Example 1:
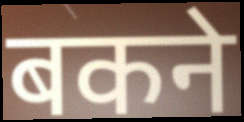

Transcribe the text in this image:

बकने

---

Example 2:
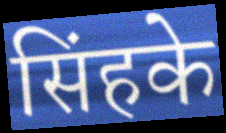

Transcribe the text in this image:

सिंहके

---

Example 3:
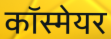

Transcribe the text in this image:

कॉस्मेयर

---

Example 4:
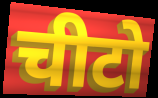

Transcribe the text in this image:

चीटो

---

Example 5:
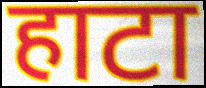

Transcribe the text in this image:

हाटा